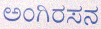
ಅಂಗಿರಸನ